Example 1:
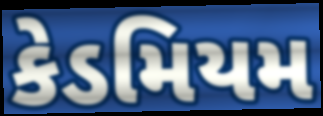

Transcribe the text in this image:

કેડમિયમ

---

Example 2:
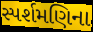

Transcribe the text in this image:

સ્પર્શમણિના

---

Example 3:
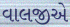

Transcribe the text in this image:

વાલજીએ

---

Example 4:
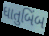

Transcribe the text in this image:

ધાતુબિંબ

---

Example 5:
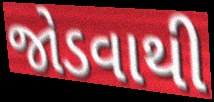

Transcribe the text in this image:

જોડવાથી